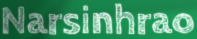
Narsinhrao